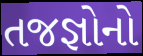
તજજ્ઞોનો